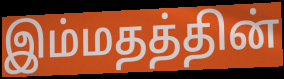
இம்மதத்தின்